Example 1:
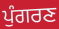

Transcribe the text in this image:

ਪੁੰਗਰਣ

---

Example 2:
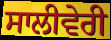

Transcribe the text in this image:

ਸਾਲੀਵੇਰੀ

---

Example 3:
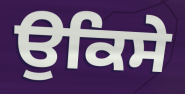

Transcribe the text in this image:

ਉਕਿਸੇ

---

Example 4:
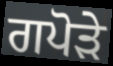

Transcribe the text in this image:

ਗਪੋੜੇ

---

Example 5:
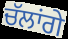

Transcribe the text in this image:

ਚੱਲਾਂਗੇ